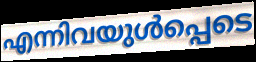
എന്നിവയുൾപ്പെടെ